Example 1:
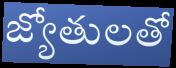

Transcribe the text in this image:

జ్యోతులతో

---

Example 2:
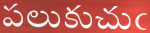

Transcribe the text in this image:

పలుకుచుఁ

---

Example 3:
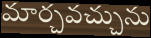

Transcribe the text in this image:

మార్చవచ్చును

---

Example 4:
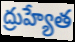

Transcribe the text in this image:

ద్రుహ్యేత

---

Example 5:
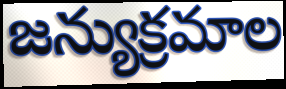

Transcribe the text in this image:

జన్యుక్రమాల